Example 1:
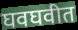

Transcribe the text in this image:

घवघवीत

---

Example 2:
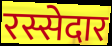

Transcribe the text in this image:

रस्सेदार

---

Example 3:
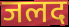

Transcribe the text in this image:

जलद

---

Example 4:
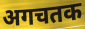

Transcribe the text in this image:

अगचतक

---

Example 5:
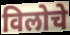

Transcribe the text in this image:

विलोचे